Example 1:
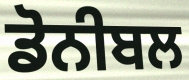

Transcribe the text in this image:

ਡੋਨੀਬਲ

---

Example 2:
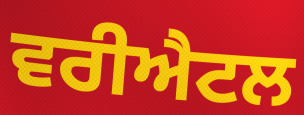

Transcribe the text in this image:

ਵਰੀਐਟਲ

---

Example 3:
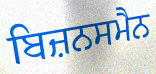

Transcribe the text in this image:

ਬਿਜ਼ਨਸਮੈਨ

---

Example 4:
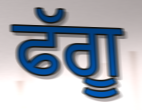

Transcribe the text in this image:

ਫੱਗੂ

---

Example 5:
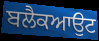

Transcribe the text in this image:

ਬਲੈਕਆਉਟ